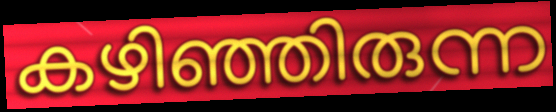
കഴിഞ്ഞിരുന്ന